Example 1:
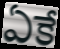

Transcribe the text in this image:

ఏకే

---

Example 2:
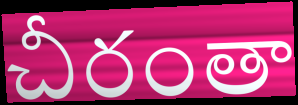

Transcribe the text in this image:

చీరంతా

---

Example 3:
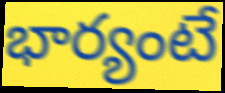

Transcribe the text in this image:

భార్యంటే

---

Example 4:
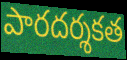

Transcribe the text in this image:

పారదర్శకత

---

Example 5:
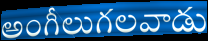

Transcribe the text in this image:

అంగీలుగలవాడు